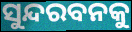
ସୁନ୍ଦରବନକୁ